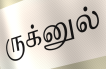
ருக்னுல்